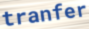
tranfer